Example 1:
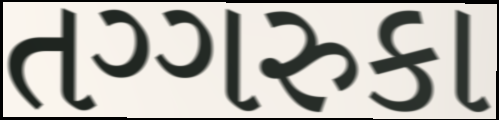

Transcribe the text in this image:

તગ્ગરુકા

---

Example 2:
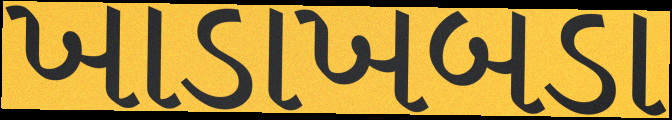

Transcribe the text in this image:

ખાડાખબડા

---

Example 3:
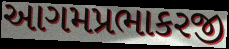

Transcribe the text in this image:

આગમપ્રભાકરજી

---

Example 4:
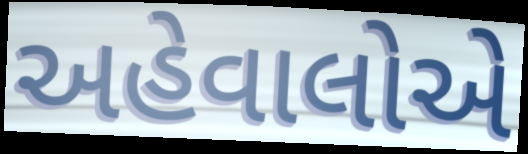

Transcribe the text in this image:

અહેવાલોએ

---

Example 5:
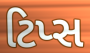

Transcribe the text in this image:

ટિપ્સ